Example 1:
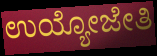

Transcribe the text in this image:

ಉಯ್ಯೋಜೇತಿ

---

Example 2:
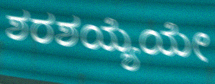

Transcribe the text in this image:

ಶರಶಯ್ಯೆಯೇ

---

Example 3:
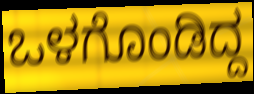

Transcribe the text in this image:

ಒಳಗೊಂಡಿದ್ದ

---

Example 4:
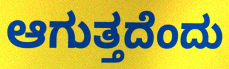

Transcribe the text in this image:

ಆಗುತ್ತದೆಂದು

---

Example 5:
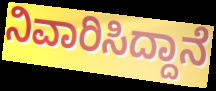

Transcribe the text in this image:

ನಿವಾರಿಸಿದ್ದಾನೆ